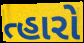
ત્હારો